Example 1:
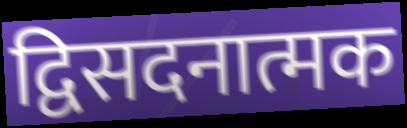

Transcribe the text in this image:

द्विसदनात्मक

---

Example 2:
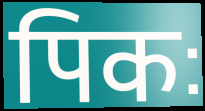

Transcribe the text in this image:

पिकः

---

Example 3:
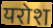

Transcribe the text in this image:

यरोश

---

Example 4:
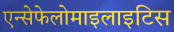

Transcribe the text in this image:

एन्सेफेलोमाइलाइटिस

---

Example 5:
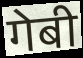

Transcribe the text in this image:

गेबी